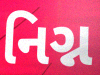
નિગ્ન